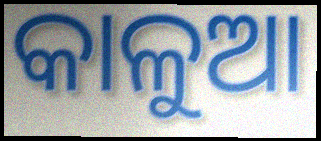
କାଳୁଆ